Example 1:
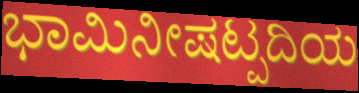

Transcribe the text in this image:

ಭಾಮಿನೀಷಟ್ಪದಿಯ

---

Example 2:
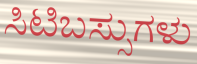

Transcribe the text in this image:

ಸಿಟಿಬಸ್ಸುಗಳು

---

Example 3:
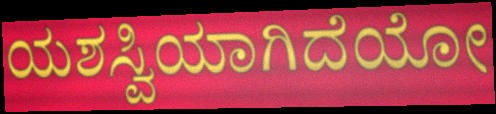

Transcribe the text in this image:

ಯಶಸ್ವಿಯಾಗಿದೆಯೋ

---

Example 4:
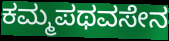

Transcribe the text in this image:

ಕಮ್ಮಪಥವಸೇನ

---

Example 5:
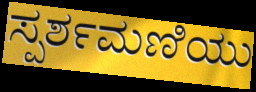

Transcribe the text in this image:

ಸ್ಪರ್ಶಮಣಿಯು